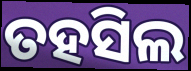
ତହସିଲ